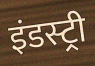
इंडस्‍ट्री